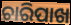
ଚାରିପାଖ